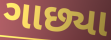
ગાછ્યા